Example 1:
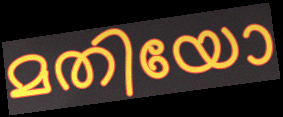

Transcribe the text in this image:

മതിയോ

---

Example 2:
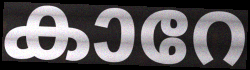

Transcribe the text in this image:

കാറേ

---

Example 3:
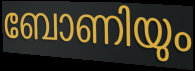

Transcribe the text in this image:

ബോണിയും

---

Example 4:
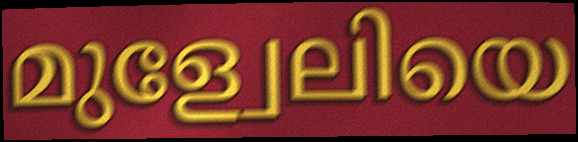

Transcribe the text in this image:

മുള്വേലിയെ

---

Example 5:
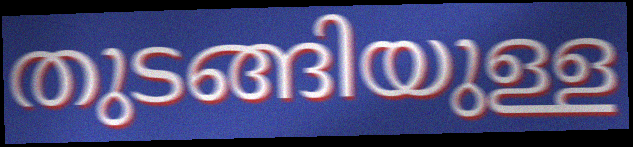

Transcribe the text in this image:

തുടങ്ങിയുള്ള